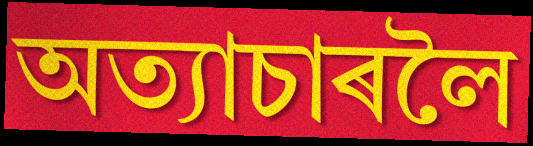
অত্যাচাৰলৈ